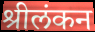
श्रीलंकन